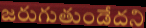
జరుగుతుండేదని